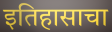
इतिहासाचा